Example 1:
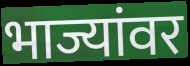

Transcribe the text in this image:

भाज्यांवर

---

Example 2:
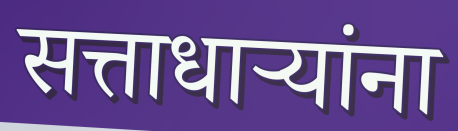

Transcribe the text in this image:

सत्ताधाऱ्यांना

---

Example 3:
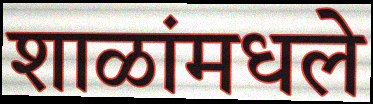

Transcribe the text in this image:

शाळांमधले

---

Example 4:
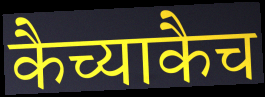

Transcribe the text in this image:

कैच्याकैच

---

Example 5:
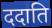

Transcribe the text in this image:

ददाति